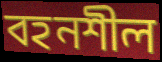
বহনশীল